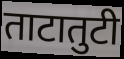
ताटातुटी